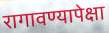
रागावण्यापेक्षा